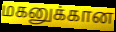
மகனுக்கான